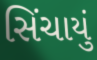
સિંચાયું